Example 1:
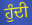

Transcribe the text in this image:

ਹੁੰਦੀ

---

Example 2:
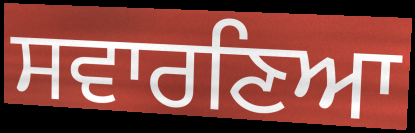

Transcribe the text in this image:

ਸਵਾਰਣਿਆ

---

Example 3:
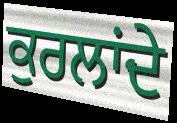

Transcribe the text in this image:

ਕੁਰਲਾਂਦੇ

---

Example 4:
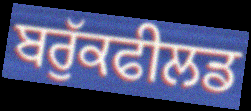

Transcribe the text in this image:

ਬਰੁੱਕਫੀਲਡ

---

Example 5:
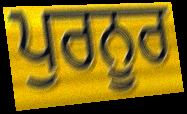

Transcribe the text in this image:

ਪੁਰਨੂਰ